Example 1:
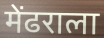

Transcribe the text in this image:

मेंढराला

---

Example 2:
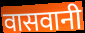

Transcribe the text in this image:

वासवानी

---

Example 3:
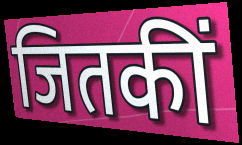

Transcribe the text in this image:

जितकीं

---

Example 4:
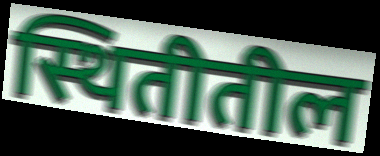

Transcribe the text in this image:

स्थितीतील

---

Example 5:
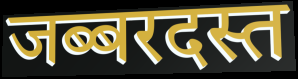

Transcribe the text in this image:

जब्बरदस्त